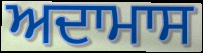
ਅਦਾਮਾਸ